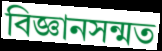
বিজ্ঞানসন্মত